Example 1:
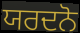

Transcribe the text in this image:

ਯਰਦਨੋ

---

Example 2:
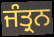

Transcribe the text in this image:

ਜੰਤ੍ਰਨ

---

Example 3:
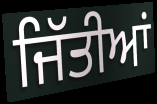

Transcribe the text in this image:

ਜਿੱਤੀਆਂ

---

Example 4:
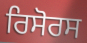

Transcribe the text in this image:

ਰਿਸੋਰਸ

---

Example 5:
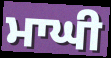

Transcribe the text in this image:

ਮਾਘੀ